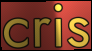
cris